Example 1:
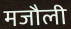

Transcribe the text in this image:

मजौली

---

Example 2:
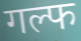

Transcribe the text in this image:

गल्फ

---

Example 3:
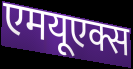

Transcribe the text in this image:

एमयूएक्स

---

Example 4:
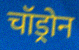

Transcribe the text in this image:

चॉड्रोन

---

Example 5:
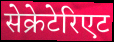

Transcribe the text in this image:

सेक्रेटेरिएट